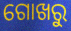
ଗୋଖରୁ